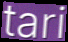
tari